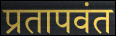
प्रतापवंत